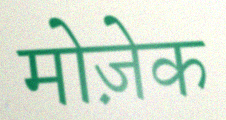
मोज़ेक